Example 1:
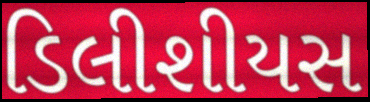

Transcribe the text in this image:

ડિલીશીયસ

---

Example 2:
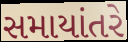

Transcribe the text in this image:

સમાયાંતરે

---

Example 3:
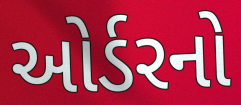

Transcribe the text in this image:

ઓર્ડરનો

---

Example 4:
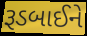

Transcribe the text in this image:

રૂડબાઈને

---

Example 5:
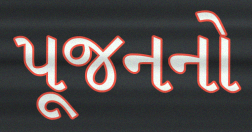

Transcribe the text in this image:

પૂજનનો